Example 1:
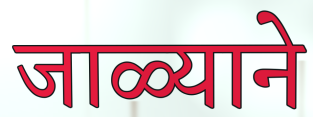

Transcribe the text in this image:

जाळ्याने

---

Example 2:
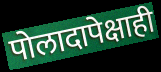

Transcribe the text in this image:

पोलादापेक्षाही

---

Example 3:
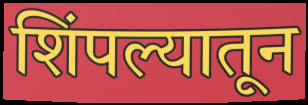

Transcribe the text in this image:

शिंपल्यातून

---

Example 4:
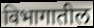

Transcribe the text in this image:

विभागातील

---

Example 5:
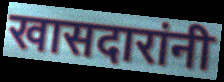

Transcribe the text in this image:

खासदारांनी